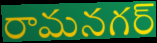
రామనగర్